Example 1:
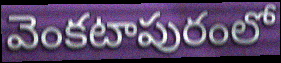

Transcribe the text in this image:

వెంకటాపురంలో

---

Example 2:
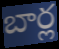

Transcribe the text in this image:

బార్ల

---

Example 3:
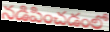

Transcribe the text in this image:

నడిపించడంలో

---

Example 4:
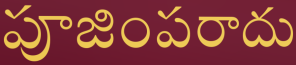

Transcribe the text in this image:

పూజింపరాదు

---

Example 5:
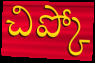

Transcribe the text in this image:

చిప్కో